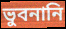
ভুবনানি